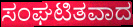
ಸಂಘಟಿತವಾದ